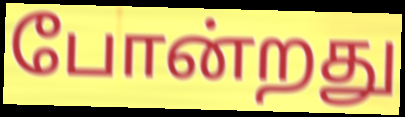
போன்றது